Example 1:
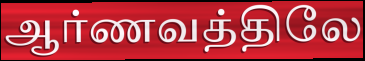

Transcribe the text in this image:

ஆர்ணவத்திலே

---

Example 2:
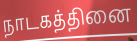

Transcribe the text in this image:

நாடகத்தினை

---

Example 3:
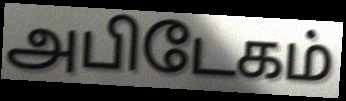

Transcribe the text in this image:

அபிடேகம்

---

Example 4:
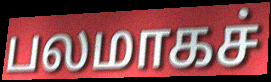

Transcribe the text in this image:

பலமாகச்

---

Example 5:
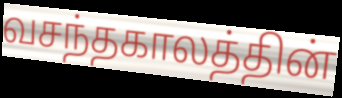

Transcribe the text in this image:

வசந்தகாலத்தின்